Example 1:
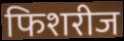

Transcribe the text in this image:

फिशरीज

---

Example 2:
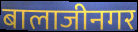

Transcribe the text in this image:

बालाजीनगर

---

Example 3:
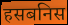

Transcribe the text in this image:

हसबनिस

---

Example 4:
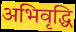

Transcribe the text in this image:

अभिवृद्धि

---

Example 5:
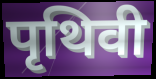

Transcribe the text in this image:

पृथिवी